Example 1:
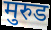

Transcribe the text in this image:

मुरुड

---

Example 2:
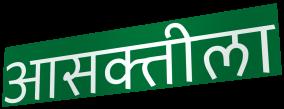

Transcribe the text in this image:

आसक्तीला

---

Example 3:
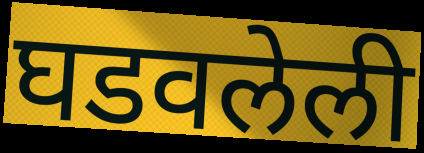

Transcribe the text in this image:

घडवलेली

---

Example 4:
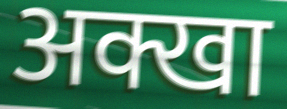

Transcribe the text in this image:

अक्खा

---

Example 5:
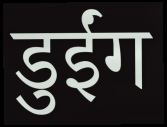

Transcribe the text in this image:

डुईंग